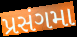
પ્રસંગમા